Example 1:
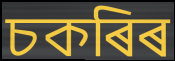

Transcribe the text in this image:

চকৰিৰ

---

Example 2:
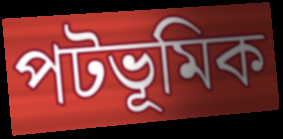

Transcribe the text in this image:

পটভূমিক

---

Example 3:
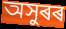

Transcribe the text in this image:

অসুৰৰ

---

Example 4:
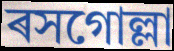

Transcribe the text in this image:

ৰসগোল্লা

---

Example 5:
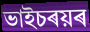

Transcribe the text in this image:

ভাইচৰয়ৰ